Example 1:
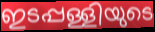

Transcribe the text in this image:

ഇടപ്പള്ളിയുടെ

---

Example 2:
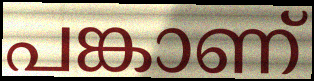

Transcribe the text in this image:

പങ്കാണ്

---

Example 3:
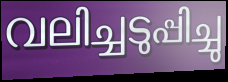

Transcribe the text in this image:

വലിച്ചടുപ്പിച്ചു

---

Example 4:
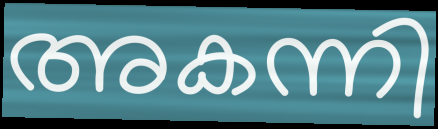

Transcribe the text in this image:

അകന്നി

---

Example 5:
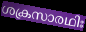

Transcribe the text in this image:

ശക്രസാരഥിഃ